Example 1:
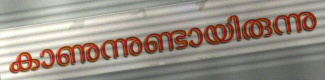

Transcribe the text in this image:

കാണുന്നുണ്ടായിരുന്നു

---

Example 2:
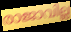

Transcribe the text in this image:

രാജാവില്ല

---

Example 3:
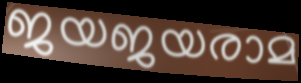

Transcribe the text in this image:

ജയജയരാമ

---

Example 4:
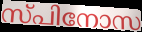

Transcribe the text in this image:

സ്പിനോസ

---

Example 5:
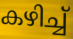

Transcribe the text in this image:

കഴിച്ച്